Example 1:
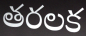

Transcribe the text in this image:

తరలక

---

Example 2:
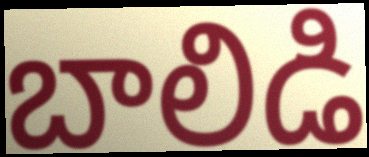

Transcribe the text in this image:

బాలిడి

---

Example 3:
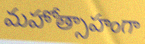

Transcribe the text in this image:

మహోత్సాహంగా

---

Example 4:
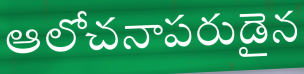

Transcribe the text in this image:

ఆలోచనాపరుడైన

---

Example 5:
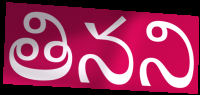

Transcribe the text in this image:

తినని